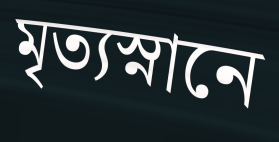
মৃত্যস্নানে